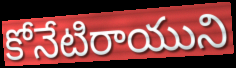
కోనేటిరాయుని